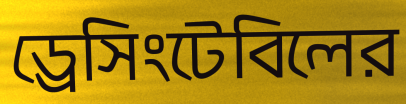
ড্রেসিংটেবিলের